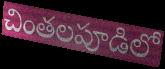
చింతలపూడిలో